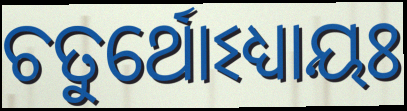
ଚତୁର୍ଥୋଽଧ୍ୟାୟଃ